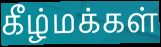
கீழ்மக்கள்